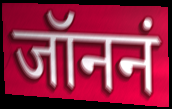
जॉननं